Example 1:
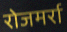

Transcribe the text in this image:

रोजमर्रा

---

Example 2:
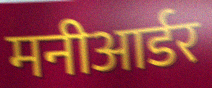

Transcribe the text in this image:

मनीआर्डर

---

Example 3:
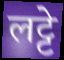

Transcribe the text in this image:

लट्टे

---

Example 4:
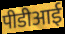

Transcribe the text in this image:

पीडीआई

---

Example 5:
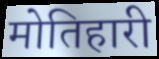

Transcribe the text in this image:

मोतिहारी